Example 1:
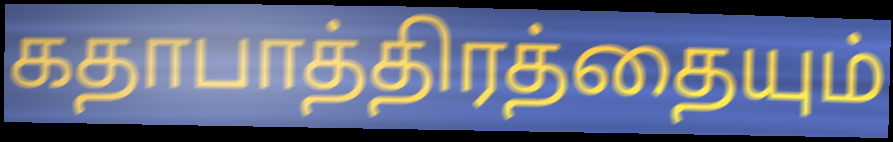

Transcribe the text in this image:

கதாபாத்திரத்தையும்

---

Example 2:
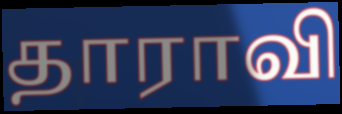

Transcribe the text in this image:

தாராவி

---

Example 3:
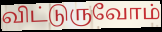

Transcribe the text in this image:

விட்டுருவோம்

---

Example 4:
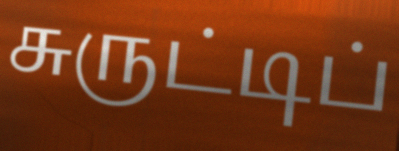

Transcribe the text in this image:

சுருட்டிப்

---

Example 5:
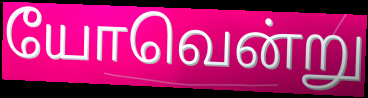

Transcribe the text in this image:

யோவென்று